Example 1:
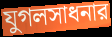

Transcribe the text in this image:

যুগলসাধনার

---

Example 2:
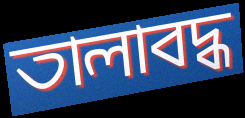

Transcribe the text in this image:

তালাবদ্ধ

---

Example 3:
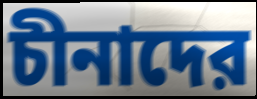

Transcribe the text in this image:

চীনাদের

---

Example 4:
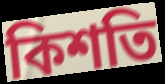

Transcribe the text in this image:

কিশতি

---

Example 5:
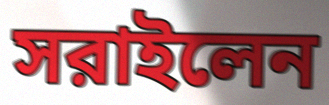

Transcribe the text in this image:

সরাইলেন